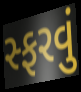
સ્ફરવું